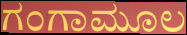
ಗಂಗಾಮೂಲ